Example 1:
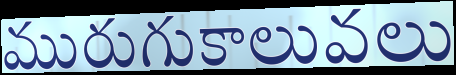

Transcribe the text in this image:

మురుగుకాలువలు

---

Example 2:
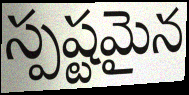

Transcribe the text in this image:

స్పష్టమైన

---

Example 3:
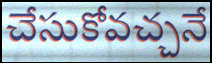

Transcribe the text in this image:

చేసుకోవచ్చనే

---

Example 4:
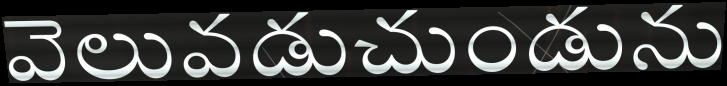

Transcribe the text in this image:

వెలువడుచుండును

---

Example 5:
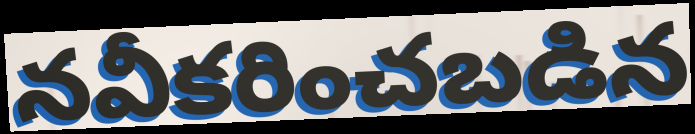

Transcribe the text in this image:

నవీకరించబడిన